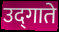
उद्‌गाते